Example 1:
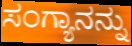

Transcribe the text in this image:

ಸಂಗ್ಯಾನನ್ನು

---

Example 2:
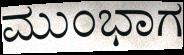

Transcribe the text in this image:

ಮುಂಭಾಗ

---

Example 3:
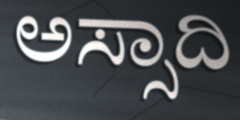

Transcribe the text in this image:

ಅಸ್ಸಾದಿ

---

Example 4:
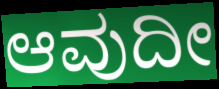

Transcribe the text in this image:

ಆವುದೀ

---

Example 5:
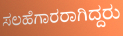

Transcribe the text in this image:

ಸಲಹೆಗಾರರಾಗಿದ್ದರು